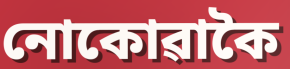
নোকোৱাকৈ